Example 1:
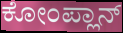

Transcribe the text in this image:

ಕೋಂಪ್ಲಾನ್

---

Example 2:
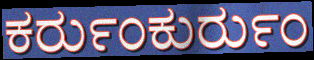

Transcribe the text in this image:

ಕರ್ರುಂಕುರ್ರುಂ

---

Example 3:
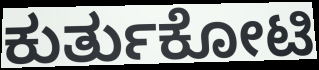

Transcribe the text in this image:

ಕುರ್ತುಕೋಟಿ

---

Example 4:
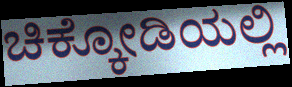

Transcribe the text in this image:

ಚಿಕ್ಕೋಡಿಯಲ್ಲಿ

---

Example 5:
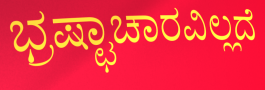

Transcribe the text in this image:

ಭ್ರಷ್ಟಾಚಾರವಿಲ್ಲದೆ